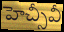
హెచ్సీవీ